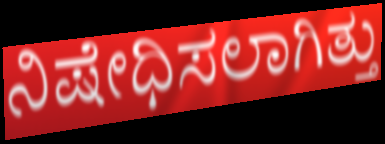
ನಿಷೇಧಿಸಲಾಗಿತ್ತು